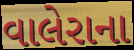
વાલેરાના